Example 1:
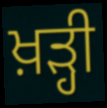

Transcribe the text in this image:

ਖ਼ੜ੍ਹੀ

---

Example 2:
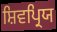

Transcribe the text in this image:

ਸ਼ਿਵਪ੍ਰਿਯ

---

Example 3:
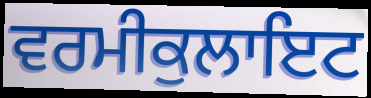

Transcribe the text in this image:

ਵਰਮੀਕੁਲਾਇਟ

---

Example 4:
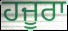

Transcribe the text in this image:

ਹਜੂਰਾ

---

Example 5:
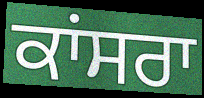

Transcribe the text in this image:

ਕਾਂਸਰਾ